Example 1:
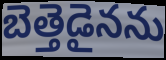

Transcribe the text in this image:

బెత్తెడైనను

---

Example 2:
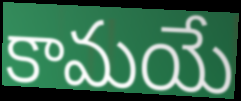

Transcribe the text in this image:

కామయే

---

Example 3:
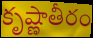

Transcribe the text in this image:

కృష్ణాతీరం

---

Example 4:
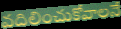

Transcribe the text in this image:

వదిలించుకోవాలనే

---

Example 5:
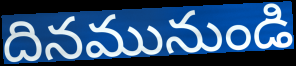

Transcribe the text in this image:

దినమునుండి